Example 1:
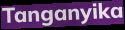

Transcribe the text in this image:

Tanganyika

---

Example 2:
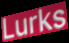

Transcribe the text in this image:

Lurks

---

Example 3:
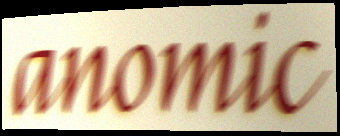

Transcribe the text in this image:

anomic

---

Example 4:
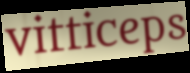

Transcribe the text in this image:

vitticeps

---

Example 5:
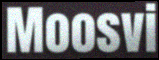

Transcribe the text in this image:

Moosvi